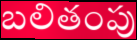
బలితంపు